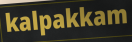
kalpakkam